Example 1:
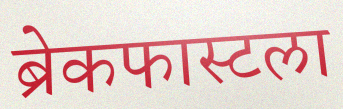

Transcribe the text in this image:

ब्रेकफास्टला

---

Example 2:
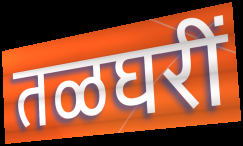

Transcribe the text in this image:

तळघरीं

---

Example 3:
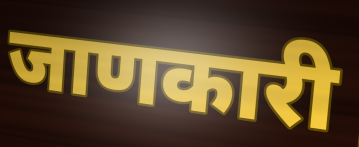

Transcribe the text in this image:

जाणकारी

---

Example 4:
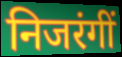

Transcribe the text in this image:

निजरंगीं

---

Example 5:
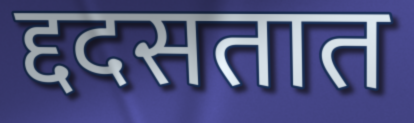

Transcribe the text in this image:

द्ददसतात